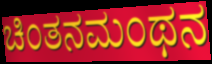
ಚಿಂತನಮಂಥನ